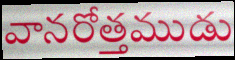
వానరోత్తముడు